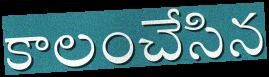
కాలంచేసిన